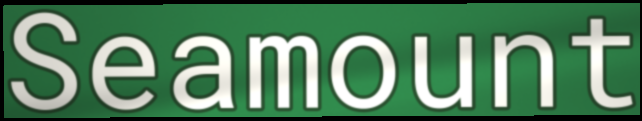
Seamount